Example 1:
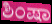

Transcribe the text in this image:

ಶಿಂಷಾ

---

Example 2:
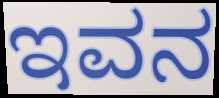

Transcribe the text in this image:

ಇವನ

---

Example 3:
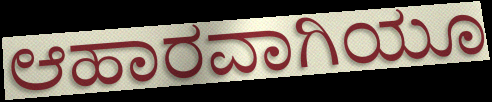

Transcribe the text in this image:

ಆಹಾರವಾಗಿಯೂ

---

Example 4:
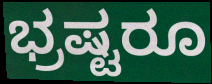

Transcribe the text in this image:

ಭ್ರಷ್ಟರೂ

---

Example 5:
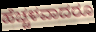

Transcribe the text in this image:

ಹೆಚ್ಚಳವಾದರೂ